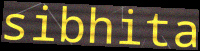
sibhita